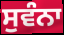
ਸੁਵੰਨਾ